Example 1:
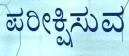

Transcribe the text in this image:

ಪರೀಕ್ಷಿಸುವ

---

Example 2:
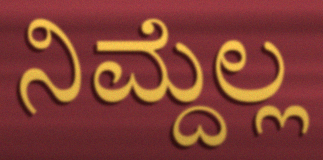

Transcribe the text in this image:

ನಿಮ್ದೆಲ್ಲ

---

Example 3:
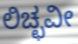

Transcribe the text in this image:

ಲಿಚ್ಛವೀ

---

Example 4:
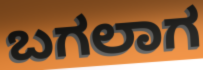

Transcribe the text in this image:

ಬಗಲಾಗ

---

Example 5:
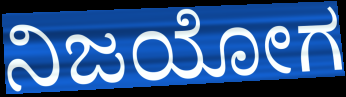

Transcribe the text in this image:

ನಿಜಯೋಗ